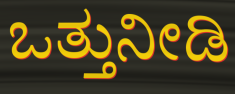
ಒತ್ತುನೀಡಿ